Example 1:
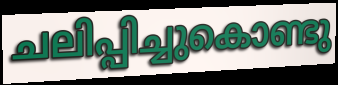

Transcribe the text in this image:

ചലിപ്പിച്ചുകൊണ്ടു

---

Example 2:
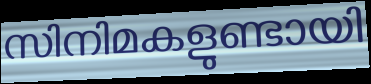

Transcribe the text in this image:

സിനിമകളുണ്ടായി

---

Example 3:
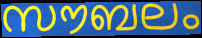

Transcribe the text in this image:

സൗബലം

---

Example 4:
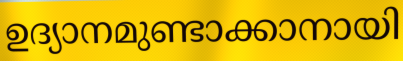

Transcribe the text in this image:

ഉദ്യാനമുണ്ടാക്കാനായി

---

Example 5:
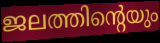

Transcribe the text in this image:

ജലത്തിന്റെയും